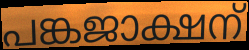
പങ്കജാക്ഷന്